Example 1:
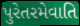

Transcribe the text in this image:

પુરેતરમેવાતિ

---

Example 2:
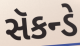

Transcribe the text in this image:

સૅકન્ડે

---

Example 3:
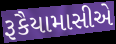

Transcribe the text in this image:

રૂકૈયામાસીએ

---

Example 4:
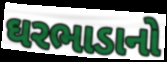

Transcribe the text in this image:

ઘરભાડાનો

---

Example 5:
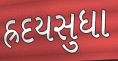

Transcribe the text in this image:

હ્રદયસુધા